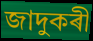
জাদুকৰী